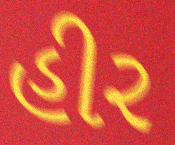
હીર